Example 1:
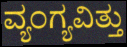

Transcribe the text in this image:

ವ್ಯಂಗ್ಯವಿತ್ತು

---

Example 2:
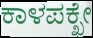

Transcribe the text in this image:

ಕಾಳಪಕ್ಖೇ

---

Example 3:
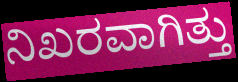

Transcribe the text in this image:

ನಿಖರವಾಗಿತ್ತು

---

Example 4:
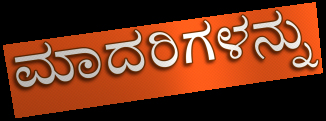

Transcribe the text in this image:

ಮಾದರಿಗಳನ್ನು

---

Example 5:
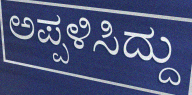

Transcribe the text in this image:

ಅಪ್ಪಳಿಸಿದ್ದು